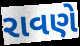
રાવણે